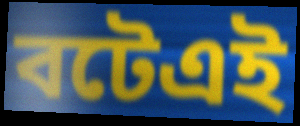
বটেএই